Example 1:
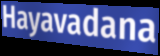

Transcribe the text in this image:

Hayavadana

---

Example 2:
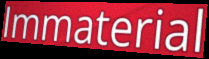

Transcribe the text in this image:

Immaterial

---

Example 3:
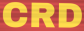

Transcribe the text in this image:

CRD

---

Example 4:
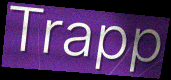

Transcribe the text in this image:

Trapp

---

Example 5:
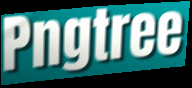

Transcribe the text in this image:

Pngtree